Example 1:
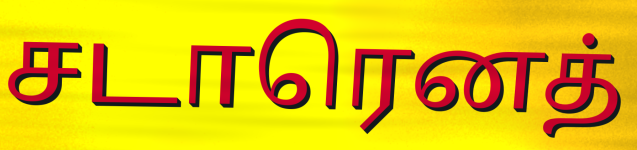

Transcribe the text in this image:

சடாரெனத்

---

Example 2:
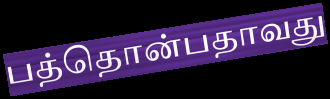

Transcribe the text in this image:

பத்தொன்பதாவது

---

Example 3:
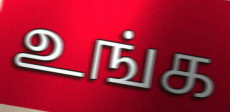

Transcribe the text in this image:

உங்க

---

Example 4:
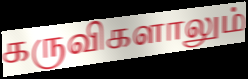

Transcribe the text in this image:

கருவிகளாலும்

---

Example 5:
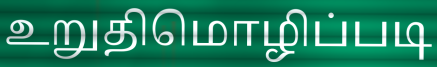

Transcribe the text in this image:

உறுதிமொழிப்படி